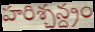
హరిశ్చన్ద్రం